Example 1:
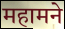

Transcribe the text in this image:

महामने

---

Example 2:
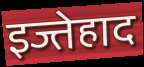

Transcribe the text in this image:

इज्तेहाद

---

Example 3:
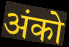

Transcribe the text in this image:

अंको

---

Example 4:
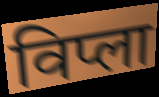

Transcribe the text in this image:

विप्ला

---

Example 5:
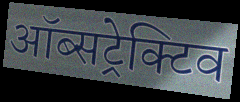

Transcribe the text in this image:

ऑब्सट्रेक्टिव